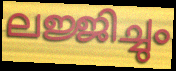
ലജ്ജിച്ചും